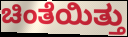
ಚಿಂತೆಯಿತ್ತು